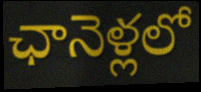
ఛానెళ్లలో